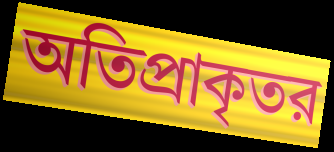
অতিপ্রাকৃতর